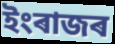
ইংৰাজৰ